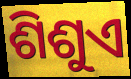
ଶିଶୁଏ